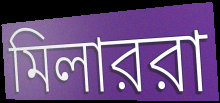
মিলাররা